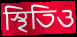
স্থিতিও